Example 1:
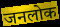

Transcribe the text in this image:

जनलोक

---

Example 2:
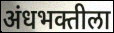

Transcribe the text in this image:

अंधभक्तीला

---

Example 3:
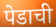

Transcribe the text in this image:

पेडाची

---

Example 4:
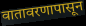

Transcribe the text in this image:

वातावरणापासून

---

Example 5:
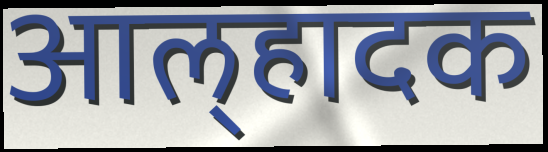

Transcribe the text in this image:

आल्हादक